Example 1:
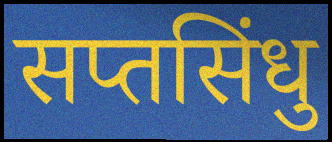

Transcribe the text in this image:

सप्तसिंधु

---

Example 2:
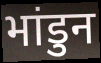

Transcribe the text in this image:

भांडुन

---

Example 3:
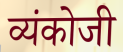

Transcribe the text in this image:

व्यंकोजी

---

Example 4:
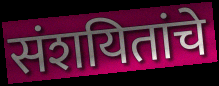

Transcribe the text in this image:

संशयितांचे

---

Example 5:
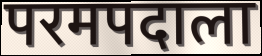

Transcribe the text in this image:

परमपदाला